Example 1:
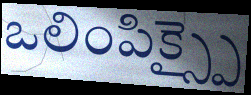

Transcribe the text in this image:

ఒలింపిక్స్పై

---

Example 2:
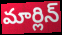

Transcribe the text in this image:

మార్లిన్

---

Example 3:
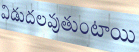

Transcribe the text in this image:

విడుదలవుతుంటాయి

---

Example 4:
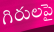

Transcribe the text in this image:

గిరులపై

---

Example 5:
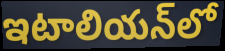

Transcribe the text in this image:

ఇటాలియన్‌లో